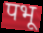
पभू